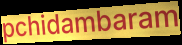
pchidambaram